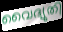
വൈദ്യുതി